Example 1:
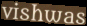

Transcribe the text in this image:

vishwas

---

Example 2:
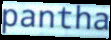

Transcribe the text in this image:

pantha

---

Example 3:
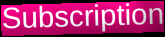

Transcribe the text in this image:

Subscription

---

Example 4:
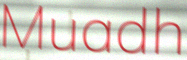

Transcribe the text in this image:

Muadh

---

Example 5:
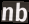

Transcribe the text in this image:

nb